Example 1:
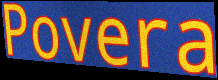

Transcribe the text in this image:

Povera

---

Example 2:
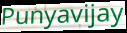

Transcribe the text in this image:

Punyavijay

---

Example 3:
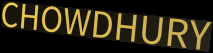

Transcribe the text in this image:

CHOWDHURY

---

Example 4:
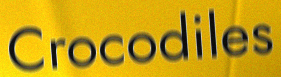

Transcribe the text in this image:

Crocodiles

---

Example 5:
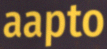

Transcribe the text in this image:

aapto